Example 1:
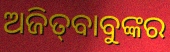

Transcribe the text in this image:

ଅଜିତ୍‍ବାବୁଙ୍କର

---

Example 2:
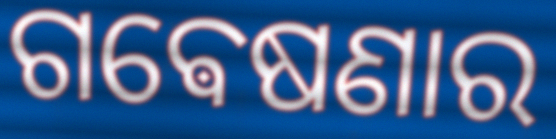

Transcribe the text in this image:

ଗଵେଷଣାର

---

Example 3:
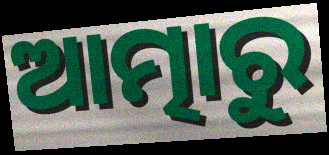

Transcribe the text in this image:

ଆତ୍ମାରୁ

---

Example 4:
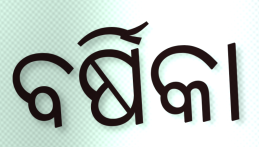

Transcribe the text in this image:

ବର୍ଷିକା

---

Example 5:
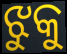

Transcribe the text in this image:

ଝୁକୁ